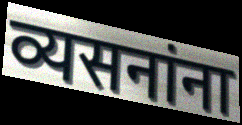
व्यसनांना